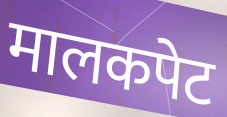
मालकपेट